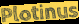
Plotinus